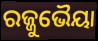
ରଜ୍ଜୁଭୈୟା